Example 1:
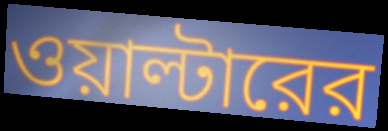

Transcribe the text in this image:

ওয়াল্টারের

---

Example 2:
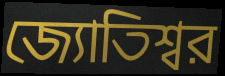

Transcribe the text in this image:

জ্যোতিশ্বর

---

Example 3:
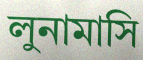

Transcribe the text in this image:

লুনামাসি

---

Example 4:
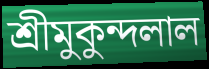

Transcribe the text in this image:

শ্রীমুকুন্দলাল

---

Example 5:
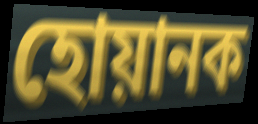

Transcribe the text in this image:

হোয়ানক